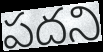
పదని